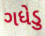
ગધેડુ